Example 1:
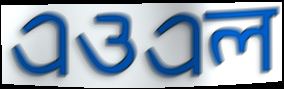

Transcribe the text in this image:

এওএল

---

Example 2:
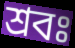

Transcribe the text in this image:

শ্রবঃ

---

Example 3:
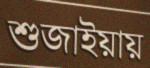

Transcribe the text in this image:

শুজাইয়ায়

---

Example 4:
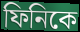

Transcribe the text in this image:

ফিনিকে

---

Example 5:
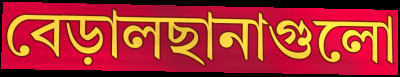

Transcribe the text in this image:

বেড়ালছানাগুলো